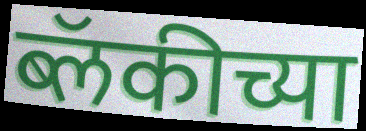
ब्लॅकीच्या